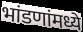
भांडणांमध्ये